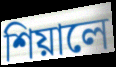
শিয়ালে